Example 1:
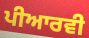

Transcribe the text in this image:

ਪੀਆਰਵੀ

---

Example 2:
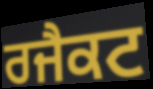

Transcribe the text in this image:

ਰਜੈਕਟ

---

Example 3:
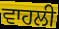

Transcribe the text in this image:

ਵਾਹਲੀ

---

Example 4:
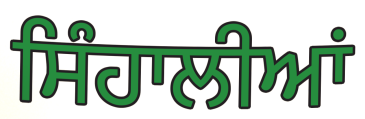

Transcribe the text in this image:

ਸਿੰਹਾਲੀਆਂ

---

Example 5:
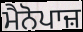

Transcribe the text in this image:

ਮੈਨੋਪਾਜ਼